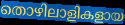
തൊഴിലാളികളായ